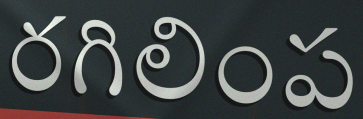
రగిలింప